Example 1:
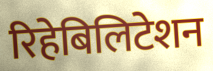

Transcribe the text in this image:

रिहेबिलिटेशन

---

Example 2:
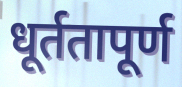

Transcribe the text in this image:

धूर्ततापूर्ण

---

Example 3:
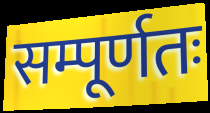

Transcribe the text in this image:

सम्पूर्णतः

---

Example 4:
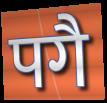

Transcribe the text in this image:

पगै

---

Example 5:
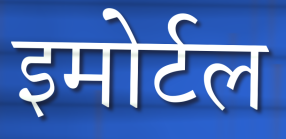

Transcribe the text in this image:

इमोर्टल